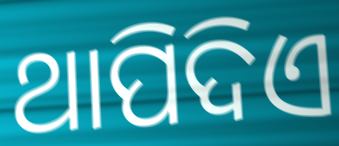
ଥାପିଦିଏ